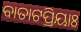
ବାତାଟପ୍ରିୟାଃ